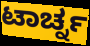
ಟಾರ್ಚ್ನ